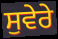
ਸੁਵੇਰੇ